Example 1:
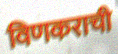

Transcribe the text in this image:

विणकराची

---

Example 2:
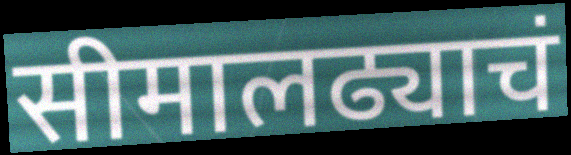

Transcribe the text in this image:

सीमालढ्याचं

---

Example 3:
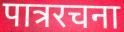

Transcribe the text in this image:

पात्ररचना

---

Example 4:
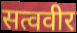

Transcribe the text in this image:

सत्ववीर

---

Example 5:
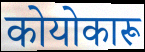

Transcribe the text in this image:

कोयोकारू